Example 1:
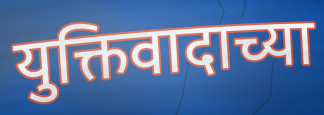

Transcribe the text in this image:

युक्तिवादाच्या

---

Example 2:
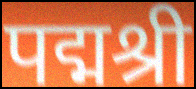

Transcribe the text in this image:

पद्मश्री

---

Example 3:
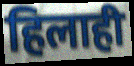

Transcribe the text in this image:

हिलाही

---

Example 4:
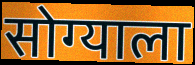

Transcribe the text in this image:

सोग्याला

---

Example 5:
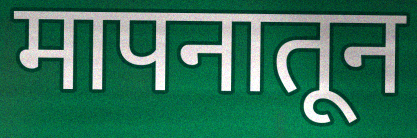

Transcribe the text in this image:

मापनातून